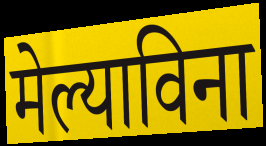
मेल्याविना